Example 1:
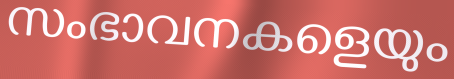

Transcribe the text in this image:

സംഭാവനകളെയും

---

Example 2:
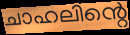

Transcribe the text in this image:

ചാഹലിന്റെ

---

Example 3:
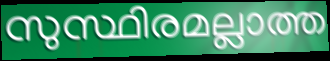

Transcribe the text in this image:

സുസ്ഥിരമല്ലാത്ത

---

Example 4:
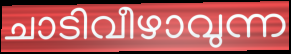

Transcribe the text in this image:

ചാടിവീഴാവുന്ന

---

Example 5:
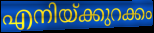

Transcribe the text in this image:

എനിയ്ക്കുറക്കം